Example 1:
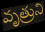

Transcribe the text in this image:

వృత్రుని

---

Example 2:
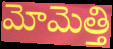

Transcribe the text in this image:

మోమెత్తి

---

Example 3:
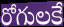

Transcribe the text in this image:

రోగులకే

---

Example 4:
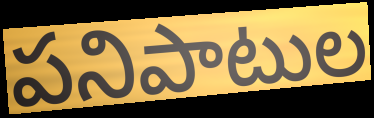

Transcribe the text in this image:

పనిపాటుల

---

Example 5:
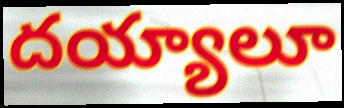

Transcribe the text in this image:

దయ్యాలూ